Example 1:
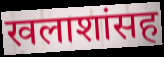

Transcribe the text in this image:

खलाशांसह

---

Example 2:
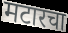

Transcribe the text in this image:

मटारचा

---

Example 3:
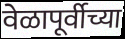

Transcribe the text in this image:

वेळापूर्वीच्या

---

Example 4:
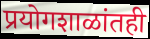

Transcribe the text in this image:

प्रयोगशाळांतही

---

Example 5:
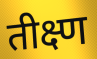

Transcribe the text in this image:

तीक्ष्ण